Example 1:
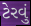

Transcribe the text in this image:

ટેરવું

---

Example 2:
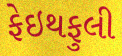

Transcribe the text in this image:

ફેઇથફુલી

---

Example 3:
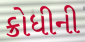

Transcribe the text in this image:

ક્રોધીની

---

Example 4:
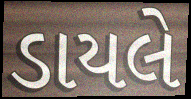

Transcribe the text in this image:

ડાયલે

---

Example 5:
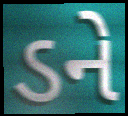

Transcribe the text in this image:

ડને